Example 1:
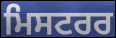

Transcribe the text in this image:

ਮਿਸਟਰਰ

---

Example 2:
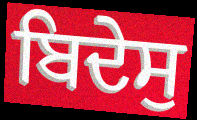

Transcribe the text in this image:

ਬਿਦੇਸੁ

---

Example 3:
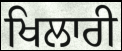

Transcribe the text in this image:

ਖਿਲਾਰੀ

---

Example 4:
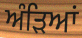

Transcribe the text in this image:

ਅੰੜਿਆਂ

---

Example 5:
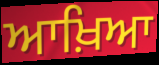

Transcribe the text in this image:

ਆਖ਼ਿਆ